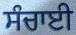
ਸੰਚਾਈ